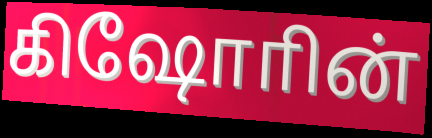
கிஷோரின்